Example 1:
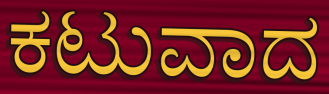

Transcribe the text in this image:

ಕಟುವಾದ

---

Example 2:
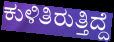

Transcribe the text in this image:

ಕುಳಿತಿರುತ್ತಿದ್ದೆ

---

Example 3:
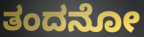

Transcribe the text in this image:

ತಂದನೋ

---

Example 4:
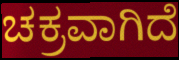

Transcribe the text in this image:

ಚಕ್ರವಾಗಿದೆ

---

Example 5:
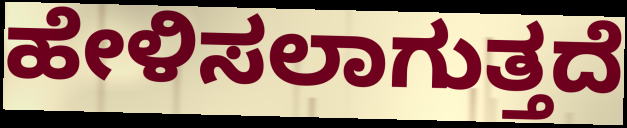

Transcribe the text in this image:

ಹೇಳಿಸಲಾಗುತ್ತದೆ